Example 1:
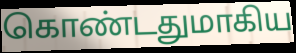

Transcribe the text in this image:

கொண்டதுமாகிய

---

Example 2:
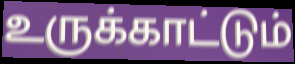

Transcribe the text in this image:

உருக்காட்டும்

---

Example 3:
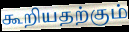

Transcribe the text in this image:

கூறியதற்கும்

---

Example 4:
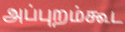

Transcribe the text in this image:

அப்புறம்கூட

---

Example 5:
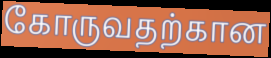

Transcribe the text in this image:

கோருவதற்கான